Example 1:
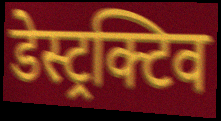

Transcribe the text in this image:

डेस्ट्रक्टिव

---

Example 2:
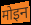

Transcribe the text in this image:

मोइन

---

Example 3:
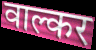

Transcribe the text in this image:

वाल्कर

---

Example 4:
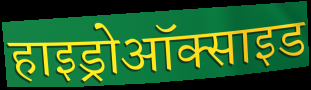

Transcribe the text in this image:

हाइड्रोऑक्साइड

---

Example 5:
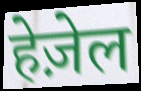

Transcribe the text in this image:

हेज़ेल